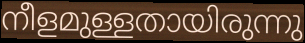
നീളമുള്ളതായിരുന്നു